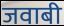
जवाबी